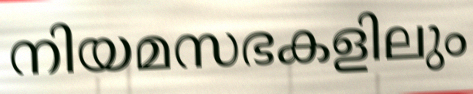
നിയമസഭകളിലും